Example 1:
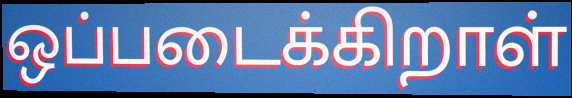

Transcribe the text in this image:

ஒப்படைக்கிறாள்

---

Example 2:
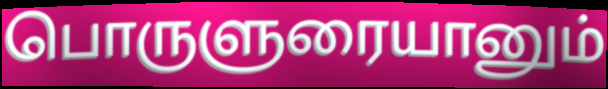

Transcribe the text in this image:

பொருளுரையானும்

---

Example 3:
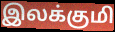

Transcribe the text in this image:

இலக்குமி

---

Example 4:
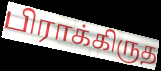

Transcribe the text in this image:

பிராக்கிருத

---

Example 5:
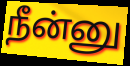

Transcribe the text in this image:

நீன்னு